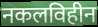
नकलविहीन